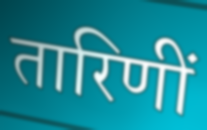
तारिणीं